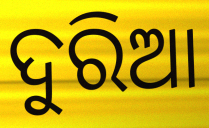
ଦୁରିଆ